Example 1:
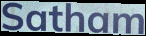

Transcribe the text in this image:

Satham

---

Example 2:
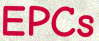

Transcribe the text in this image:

EPCs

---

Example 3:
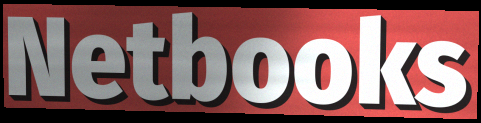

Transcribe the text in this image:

Netbooks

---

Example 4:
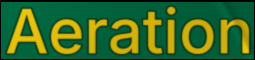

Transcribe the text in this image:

Aeration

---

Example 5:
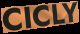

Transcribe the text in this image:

CICLY